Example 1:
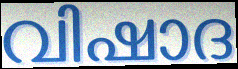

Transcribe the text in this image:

വിഷാദ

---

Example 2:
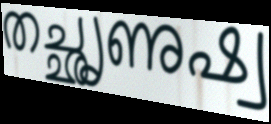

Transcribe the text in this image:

തച്ഛൃണുഷ്വ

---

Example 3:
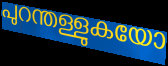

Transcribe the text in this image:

പുറന്തള്ളുകയോ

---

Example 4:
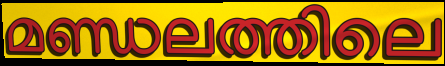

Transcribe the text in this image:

മണ്ഡലത്തിലെ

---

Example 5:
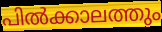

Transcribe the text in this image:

പിൽക്കാലത്തും